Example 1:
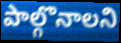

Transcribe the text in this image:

పాల్గొనాలని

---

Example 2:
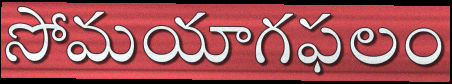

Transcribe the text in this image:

సోమయాగఫలం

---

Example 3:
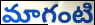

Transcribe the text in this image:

మాగంటి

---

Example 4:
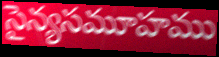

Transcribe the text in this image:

సైన్యసమూహము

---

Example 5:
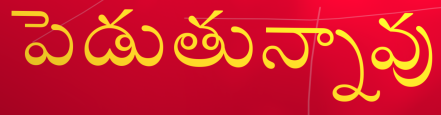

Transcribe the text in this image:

పెడుతున్నావు